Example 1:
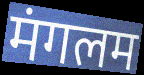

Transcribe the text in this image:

मंगलम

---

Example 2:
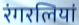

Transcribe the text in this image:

रंगरलियां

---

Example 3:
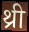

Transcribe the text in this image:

थ्री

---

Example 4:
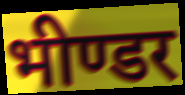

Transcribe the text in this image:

भीण्डर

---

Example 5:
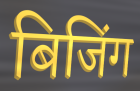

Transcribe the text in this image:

बिजिंग